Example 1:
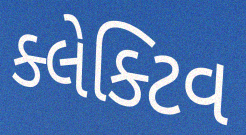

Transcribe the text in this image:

ક્લેક્ટિવ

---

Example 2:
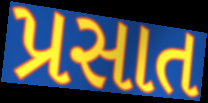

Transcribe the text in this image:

પ્રસાત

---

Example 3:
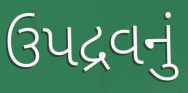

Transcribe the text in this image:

ઉપદ્રવનું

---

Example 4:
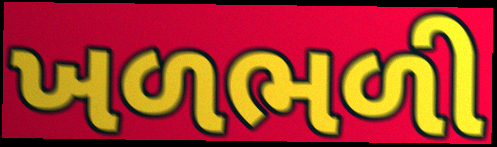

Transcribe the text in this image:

ખળભળી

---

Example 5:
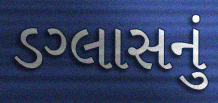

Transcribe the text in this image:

ડગ્લાસનું